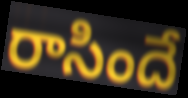
రాసిందే